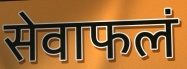
सेवाफलं